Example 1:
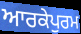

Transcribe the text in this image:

ਆਰਕੇਪੁਰਮ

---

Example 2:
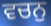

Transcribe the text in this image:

ਵਚਨੁ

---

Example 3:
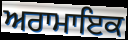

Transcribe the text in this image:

ਅਰਾਮਾਇਕ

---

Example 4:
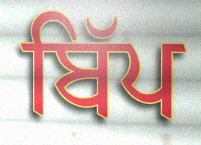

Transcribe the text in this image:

ਬਿੱਪ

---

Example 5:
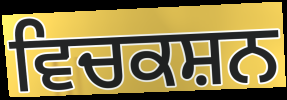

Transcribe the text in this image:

ਵਿਚਕਸ਼ਨ